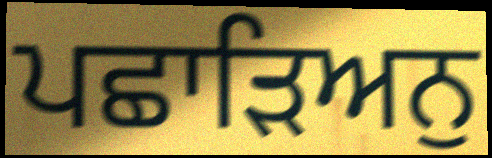
ਪਛਾੜਿਅਨੁ